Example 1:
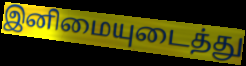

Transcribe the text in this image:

இனிமையுடைத்து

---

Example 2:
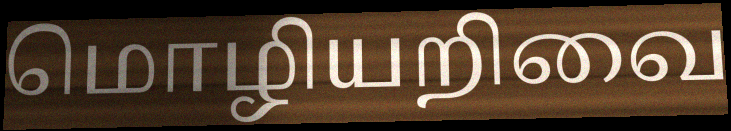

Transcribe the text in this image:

மொழியறிவை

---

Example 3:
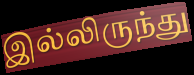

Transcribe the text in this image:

இல்லிருந்து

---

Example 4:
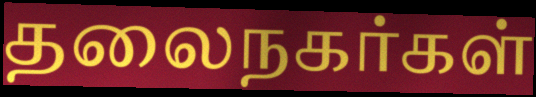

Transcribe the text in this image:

தலைநகர்கள்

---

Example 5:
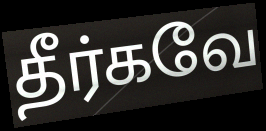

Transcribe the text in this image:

தீர்கவே